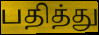
பதித்து